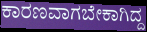
ಕಾರಣವಾಗಬೇಕಾಗಿದ್ದ